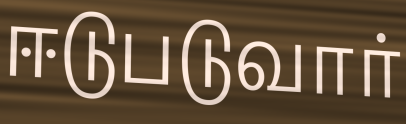
ஈடுபடுவார்